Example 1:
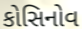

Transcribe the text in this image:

કોસિનોવ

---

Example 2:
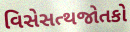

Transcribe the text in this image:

વિસેસત્થજોતકો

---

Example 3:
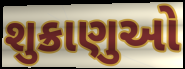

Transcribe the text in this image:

શુક્રાણુઓ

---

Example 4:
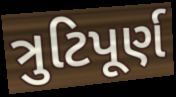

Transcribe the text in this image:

ત્રુટિપૂર્ણ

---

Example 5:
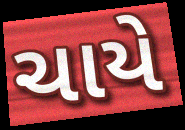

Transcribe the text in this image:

ચાયે